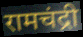
रामचंद्री